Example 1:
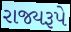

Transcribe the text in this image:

રાજ્યરૂપે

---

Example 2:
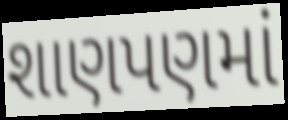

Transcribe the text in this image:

શાણપણમાં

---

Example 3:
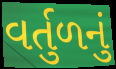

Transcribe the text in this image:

વર્તુળનું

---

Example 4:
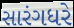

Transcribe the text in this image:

સારંગધરે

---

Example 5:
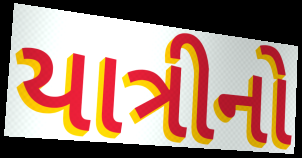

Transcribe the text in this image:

યાત્રીનો